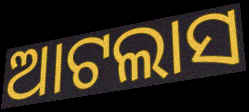
ଆଟଲାସ